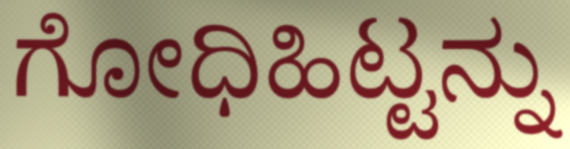
ಗೋಧಿಹಿಟ್ಟನ್ನು